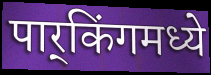
पार्किंगमध्ये